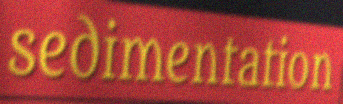
sedimentation